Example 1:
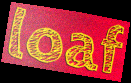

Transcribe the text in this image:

loaf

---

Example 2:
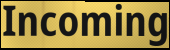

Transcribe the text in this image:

Incoming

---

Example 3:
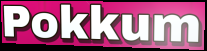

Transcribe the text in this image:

Pokkum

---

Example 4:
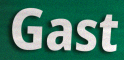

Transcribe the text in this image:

Gast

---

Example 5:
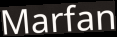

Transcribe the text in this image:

Marfan